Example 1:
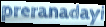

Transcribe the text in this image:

preranadayi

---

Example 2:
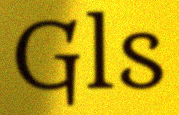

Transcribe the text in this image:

Gls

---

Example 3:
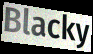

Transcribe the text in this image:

Blacky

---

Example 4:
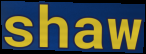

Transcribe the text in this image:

shaw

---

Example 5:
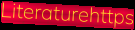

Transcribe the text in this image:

Literaturehttps